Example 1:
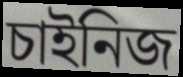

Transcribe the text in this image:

চাইনিজ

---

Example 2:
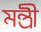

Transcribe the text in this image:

মন্ত্ৰী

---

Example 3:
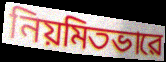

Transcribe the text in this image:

নিয়মিতভাৱে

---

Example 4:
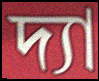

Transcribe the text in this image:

দ্যা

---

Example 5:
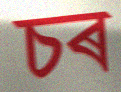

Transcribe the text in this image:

চৰ